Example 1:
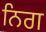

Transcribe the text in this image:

ਨਿਗ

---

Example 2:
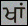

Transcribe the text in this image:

ਖਾਂ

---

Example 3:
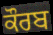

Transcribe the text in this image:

ਕੌਰਬ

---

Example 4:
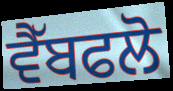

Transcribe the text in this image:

ਵੈੱਬਫਲੋ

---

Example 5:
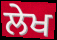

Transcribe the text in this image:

ਲੇਖ